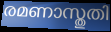
രമണാസ്തുതി